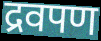
द्रवपण